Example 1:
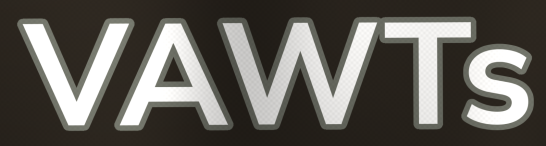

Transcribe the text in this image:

VAWTs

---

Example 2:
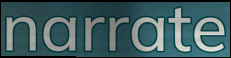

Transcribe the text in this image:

narrate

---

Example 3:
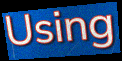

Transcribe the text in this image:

Using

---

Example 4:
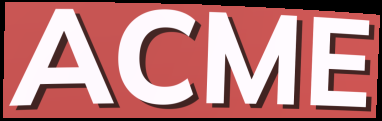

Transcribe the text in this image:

ACME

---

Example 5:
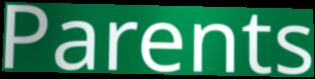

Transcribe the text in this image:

Parents